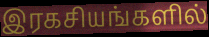
இரகசியங்களில்